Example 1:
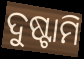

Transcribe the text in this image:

ଦୁଷ୍ଟାମି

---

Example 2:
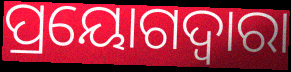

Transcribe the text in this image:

ପ୍ରୟୋଗଦ୍ଵାରା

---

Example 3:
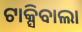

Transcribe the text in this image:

ଟାକ୍ସିବାଲା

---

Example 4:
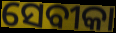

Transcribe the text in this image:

ସେବୀକା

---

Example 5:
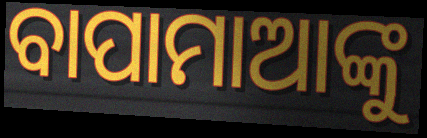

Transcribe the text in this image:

ବାପାମାଆଙ୍କୁ